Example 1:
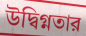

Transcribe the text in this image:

উদ্বিগ্নতার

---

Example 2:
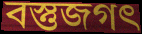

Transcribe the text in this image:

বস্তুজগৎ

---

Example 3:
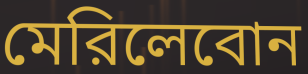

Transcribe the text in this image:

মেরিলেবোন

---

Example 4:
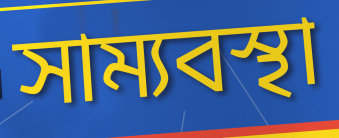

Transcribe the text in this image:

সাম্যবস্থা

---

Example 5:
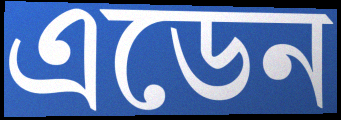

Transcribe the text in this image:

এডেন